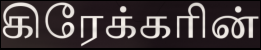
கிரேக்கரின்